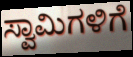
ಸ್ವಾಮಿಗಳಿಗೆ